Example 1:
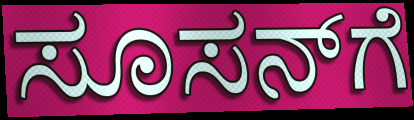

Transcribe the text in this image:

ಸೂಸನ್‌ಗೆ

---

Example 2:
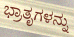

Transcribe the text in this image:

ಭ್ರಾತೃಗಳನ್ನು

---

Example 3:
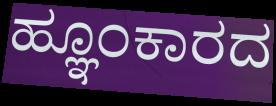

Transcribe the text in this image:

ಹ್ಞೂಂಕಾರದ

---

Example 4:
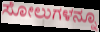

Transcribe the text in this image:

ಸೋಲುಗಳನ್ನೂ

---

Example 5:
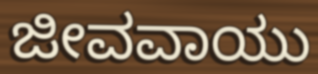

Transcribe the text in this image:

ಜೀವವಾಯು